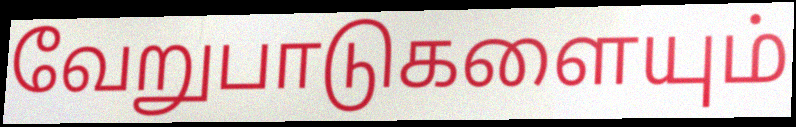
வேறுபாடுகளையும்